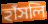
হাঁসলি